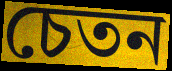
চেতন